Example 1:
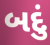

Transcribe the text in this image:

બદું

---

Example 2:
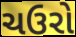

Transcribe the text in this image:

ચઉરો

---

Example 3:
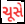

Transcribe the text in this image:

ચૂસે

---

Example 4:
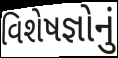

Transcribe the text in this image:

વિશેષજ્ઞોનું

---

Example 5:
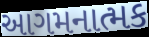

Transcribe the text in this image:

આગમનાત્મક